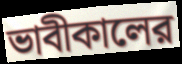
ভাবীকালের